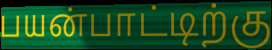
பயன்பாட்டிற்கு